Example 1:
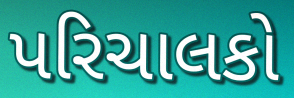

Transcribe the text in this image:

પરિચાલકો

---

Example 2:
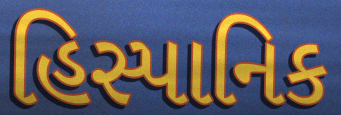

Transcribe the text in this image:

હિસ્પાનિક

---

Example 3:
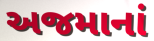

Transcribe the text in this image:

અજમાનાં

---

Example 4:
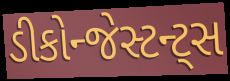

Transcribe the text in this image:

ડીકોન્જેસ્ટન્ટ્સ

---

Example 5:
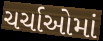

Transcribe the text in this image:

ચર્ચાઓમાં